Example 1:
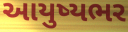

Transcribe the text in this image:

આયુષ્યભર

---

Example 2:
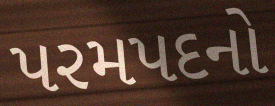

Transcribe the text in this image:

પરમપદનો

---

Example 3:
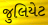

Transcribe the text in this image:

જુલિયેટ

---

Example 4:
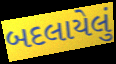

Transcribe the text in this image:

બદલાયેલું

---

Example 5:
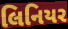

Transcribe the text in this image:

લિનિયર